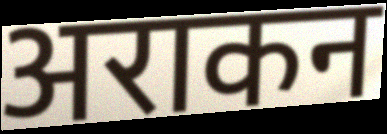
अराकन